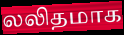
லலிதமாக